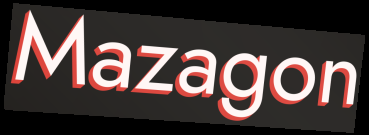
Mazagon